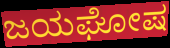
ಜಯಘೋಷ